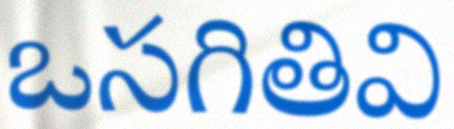
ఒసగితివి